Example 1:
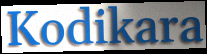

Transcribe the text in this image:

Kodikara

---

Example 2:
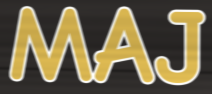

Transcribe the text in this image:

MAJ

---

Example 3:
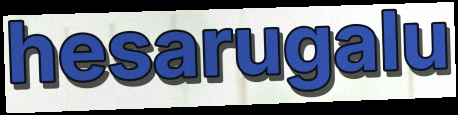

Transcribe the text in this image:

hesarugalu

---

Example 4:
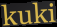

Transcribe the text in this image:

kuki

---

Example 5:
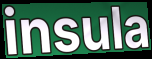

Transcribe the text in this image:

insula